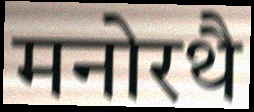
मनोरथै